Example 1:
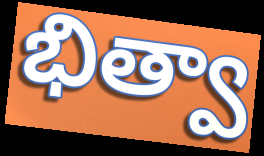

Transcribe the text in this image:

భిత్వా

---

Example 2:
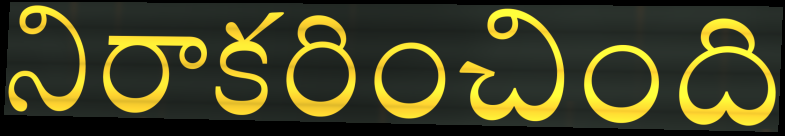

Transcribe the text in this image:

నిరాకరించింది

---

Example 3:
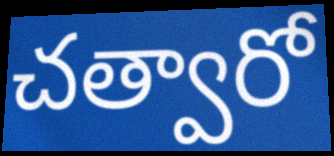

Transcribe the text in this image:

చత్వారో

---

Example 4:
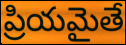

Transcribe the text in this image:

ప్రియమైతే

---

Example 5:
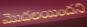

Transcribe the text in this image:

మొదలయిందని